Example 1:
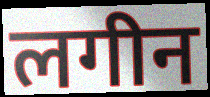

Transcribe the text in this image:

लगीन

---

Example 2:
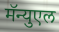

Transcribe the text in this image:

मॅन्युएल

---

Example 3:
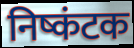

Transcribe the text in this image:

निष्कंटक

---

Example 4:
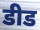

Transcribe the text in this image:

डीड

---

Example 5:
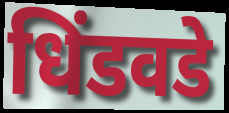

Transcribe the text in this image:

धिंडवडे